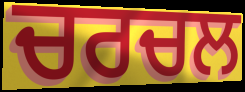
ਚਰਚਲ